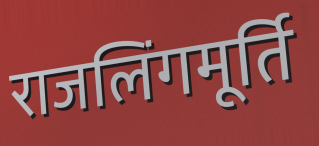
राजलिंगमूर्ति